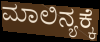
ಮಾಲಿನ್ಯಕ್ಕೆ